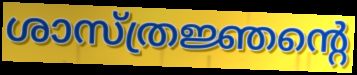
ശാസ്ത്രജ്ഞന്റെ